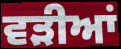
ਵੜੀਆਂ